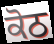
ਕੋਠ